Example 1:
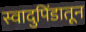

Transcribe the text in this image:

स्वादुपिंडातून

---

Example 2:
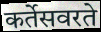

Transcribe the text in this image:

कर्तेसवरते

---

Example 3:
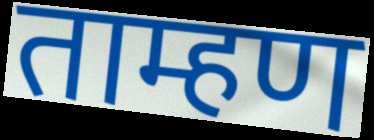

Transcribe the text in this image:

ताम्हण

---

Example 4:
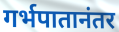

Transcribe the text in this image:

गर्भपातानंतर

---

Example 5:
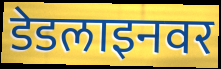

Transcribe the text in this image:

डेडलाइनवर